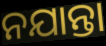
ନଯାନ୍ତା